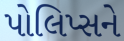
પોલિપ્સને